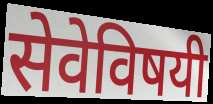
सेवेविषयी